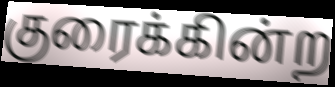
குரைக்கின்ற